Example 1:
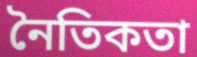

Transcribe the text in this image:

নৈতিকতা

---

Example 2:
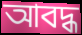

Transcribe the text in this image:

আবদ্ধ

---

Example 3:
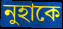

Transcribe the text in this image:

নুহাকে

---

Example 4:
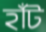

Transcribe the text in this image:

হাঁট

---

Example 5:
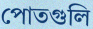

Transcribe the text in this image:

পোতগুলি